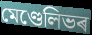
মেণ্ডেলিভৰ